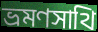
ভ্রমণসাথি